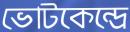
ভোটকেন্দ্রে